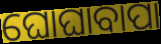
ଘୋଘାବାପା